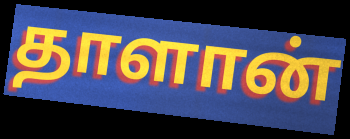
தாளான்